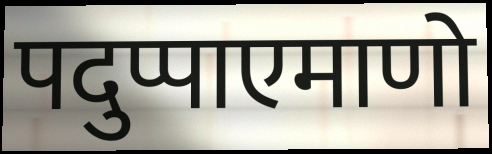
पदुप्पाएमाणो